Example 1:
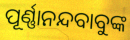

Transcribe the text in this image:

ପୂର୍ଣ୍ଣାନନ୍ଦବାବୁଙ୍କ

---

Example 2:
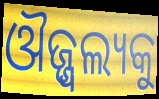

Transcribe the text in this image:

ଔଜ୍ଜ୍ଵଲ୍ୟକୁ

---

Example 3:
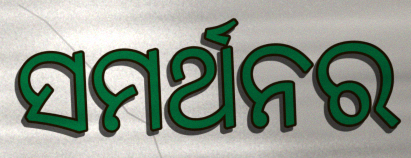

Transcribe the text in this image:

ସମର୍ଥନର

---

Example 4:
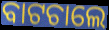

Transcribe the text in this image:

ବାଟଚାଲେ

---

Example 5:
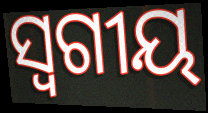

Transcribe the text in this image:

ସ୍ୱଗୀୟ